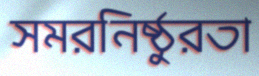
সমরনিষ্ঠুরতা